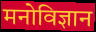
मनोविज्ञान